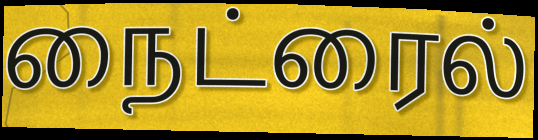
நைட்ரைல்